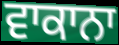
ਵਾਕਾਨਾ